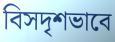
বিসদৃশভাবে